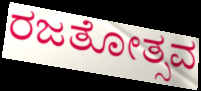
ರಜತೋತ್ಸವ